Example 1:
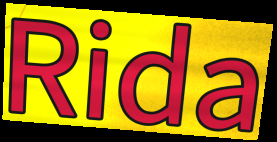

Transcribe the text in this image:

Rida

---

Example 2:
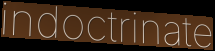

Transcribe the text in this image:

indoctrinate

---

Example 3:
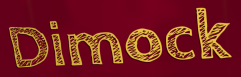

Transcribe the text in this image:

Dimock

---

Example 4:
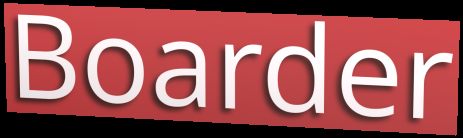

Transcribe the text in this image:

Boarder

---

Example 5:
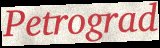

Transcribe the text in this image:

Petrograd